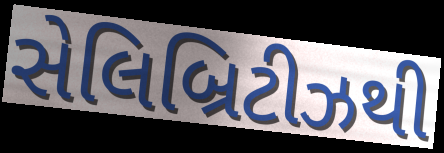
સેલિબ્રિટીઝથી